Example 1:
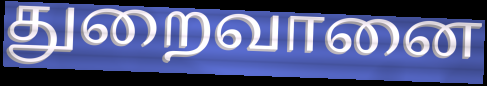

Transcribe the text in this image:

துறைவானை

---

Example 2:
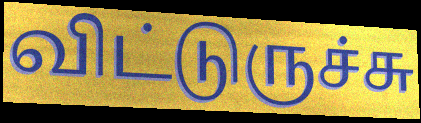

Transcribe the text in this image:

விட்டுருச்சு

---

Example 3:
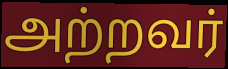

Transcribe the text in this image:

அற்றவர்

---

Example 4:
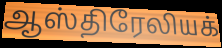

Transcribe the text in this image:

ஆஸ்திரேலியக்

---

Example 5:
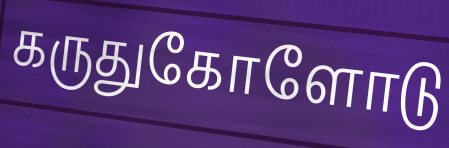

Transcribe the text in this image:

கருதுகோளோடு